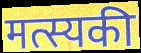
मत्स्यकी